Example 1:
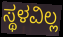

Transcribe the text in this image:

ಸ್ಥಳವಿಲ್ಲ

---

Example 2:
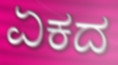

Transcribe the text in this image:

ಏಕದ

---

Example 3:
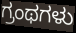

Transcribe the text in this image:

ಗ್ರಂಥಗಳು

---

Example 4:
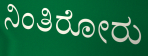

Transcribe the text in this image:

ನಿಂತಿರೋರು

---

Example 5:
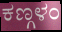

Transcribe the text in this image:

ಕಣ್ಗಳಂ